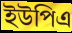
ইউপিএ